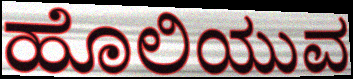
ಹೊಲಿಯುವ